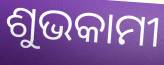
ଶୁଭକାମୀ